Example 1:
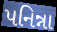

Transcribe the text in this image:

પનિન્ના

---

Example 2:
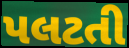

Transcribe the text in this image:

પલટતી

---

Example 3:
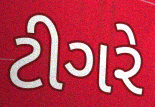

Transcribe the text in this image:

ટીગરે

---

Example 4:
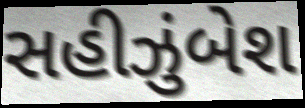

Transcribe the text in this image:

સહીઝુંબેશ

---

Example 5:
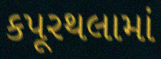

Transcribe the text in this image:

કપૂરથલામાં